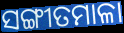
ସଙ୍ଗୀତମାଳା